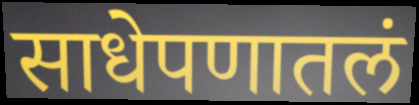
साधेपणातलं